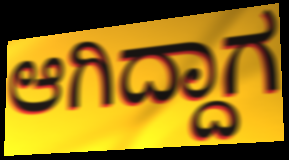
ಆಗಿದ್ದಾಗ